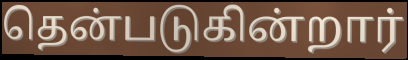
தென்படுகின்றார்